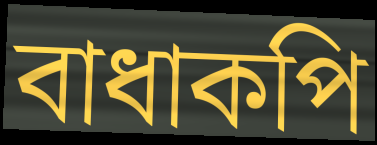
বাধাকপি